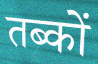
तब्कों